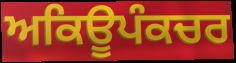
ਅਕਿਊਪੰਕਚਰ